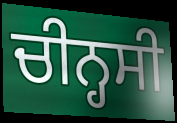
ਚੀਨ੍ਹ੍ਹਸੀ